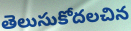
తెలుసుకోదలచిన